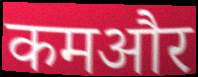
कमऔर